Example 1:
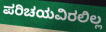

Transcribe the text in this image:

ಪರಿಚಯವಿರಲಿಲ್ಲ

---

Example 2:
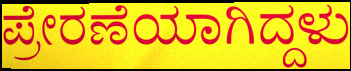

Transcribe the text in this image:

ಪ್ರೇರಣೆಯಾಗಿದ್ದಳು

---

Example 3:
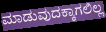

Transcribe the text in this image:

ಮಾಡುವುದಕ್ಕಾಗಲಿಲ್ಲ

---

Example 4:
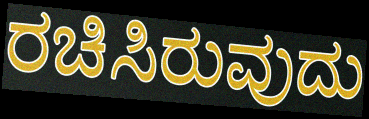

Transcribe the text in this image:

ರಚಿಸಿರುವುದು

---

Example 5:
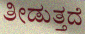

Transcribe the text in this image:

ತೀಡುತ್ತದೆ